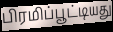
பிரமிப்பூட்டியது